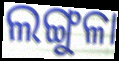
ଲଙ୍ଗୁଳା